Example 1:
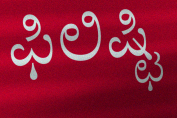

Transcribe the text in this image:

ಫಿಲಿಷ್ಟಿ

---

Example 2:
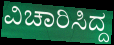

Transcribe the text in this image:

ವಿಚಾರಿಸಿದ್ದ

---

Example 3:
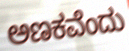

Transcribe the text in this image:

ಅಣಕವೆಂದು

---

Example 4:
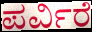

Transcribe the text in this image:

ಪರ್ವಿರೆ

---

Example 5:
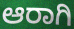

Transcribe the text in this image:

ಆರಾಗಿ